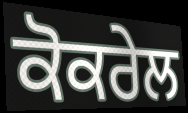
ਕੋਕਰੇਲ